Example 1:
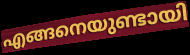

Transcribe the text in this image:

എങ്ങനെയുണ്ടായി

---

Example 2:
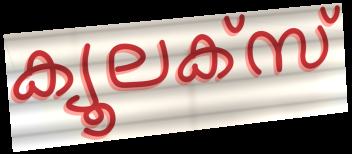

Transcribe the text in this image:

ക്യൂലക്സ്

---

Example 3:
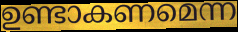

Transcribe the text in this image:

ഉണ്ടാകണമെന്ന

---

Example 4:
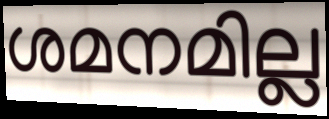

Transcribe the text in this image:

ശമനമില്ല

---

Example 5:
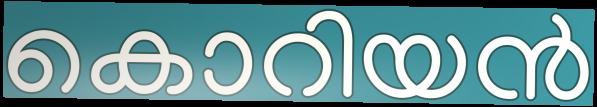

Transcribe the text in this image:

കൊറിയൻ